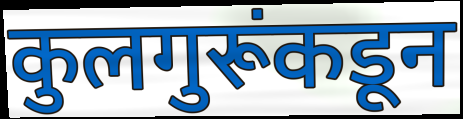
कुलगुरूंकडून